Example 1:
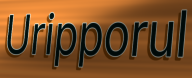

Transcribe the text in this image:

Uripporul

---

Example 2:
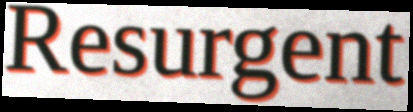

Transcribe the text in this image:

Resurgent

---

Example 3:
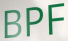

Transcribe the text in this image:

BPF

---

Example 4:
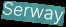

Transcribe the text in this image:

Serway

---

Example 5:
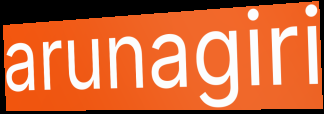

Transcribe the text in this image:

arunagiri